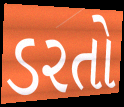
ડરતો